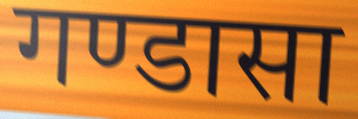
गण्डासा